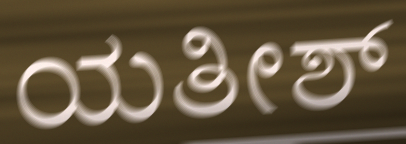
ಯತೀಶ್